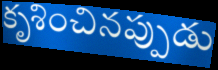
కృశించినప్పుడు